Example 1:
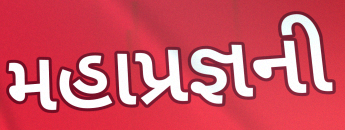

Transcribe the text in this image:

મહાપ્રજ્ઞની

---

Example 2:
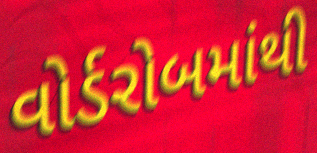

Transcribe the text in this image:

વોર્ડરોબમાંથી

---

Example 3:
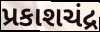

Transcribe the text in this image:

પ્રકાશચંદ્ર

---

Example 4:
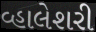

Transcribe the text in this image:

વ્હાલેશરી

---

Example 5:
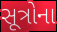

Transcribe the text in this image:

સૂત્રોના